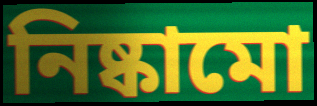
নিষ্কামো